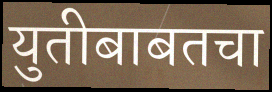
युतीबाबतचा